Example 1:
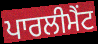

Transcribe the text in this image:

ਪਾਰਲੀਮੈਂਟ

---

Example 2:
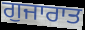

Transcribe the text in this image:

ਗੁਜਾਰਾਤ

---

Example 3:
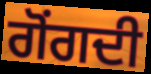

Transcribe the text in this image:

ਗੋਂਗਦੀ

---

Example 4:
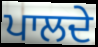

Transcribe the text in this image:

ਪਾਲਦੇ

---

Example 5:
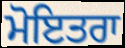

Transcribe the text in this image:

ਮੋਇਤਰਾ